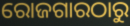
ରୋଜଗାରଠାରୁ